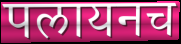
पलायनच